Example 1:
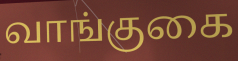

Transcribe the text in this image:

வாங்குகை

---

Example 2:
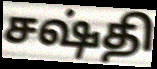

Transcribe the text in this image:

சஷ்தி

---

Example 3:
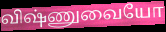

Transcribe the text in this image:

விஷ்ணுவையோ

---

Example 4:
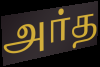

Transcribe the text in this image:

அர்த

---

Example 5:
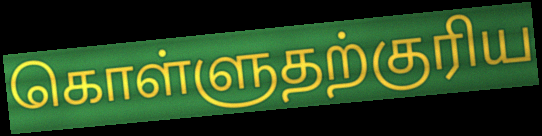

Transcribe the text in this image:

கொள்ளுதற்குரிய